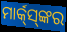
ମାର୍କ୍‍ସ୍‍ଙ୍କର